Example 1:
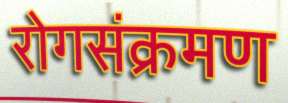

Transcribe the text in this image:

रोगसंक्रमण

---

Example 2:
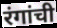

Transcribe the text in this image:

रंगांची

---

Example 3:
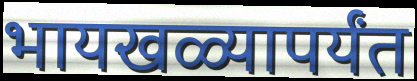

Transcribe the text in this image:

भायखळ्यापर्यंत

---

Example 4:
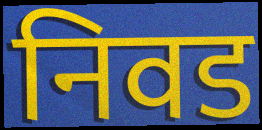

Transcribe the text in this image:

निवड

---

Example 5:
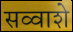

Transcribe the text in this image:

सव्वाशे